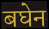
बघेन